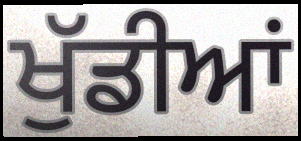
ਖੁੱਡੀਆਂ